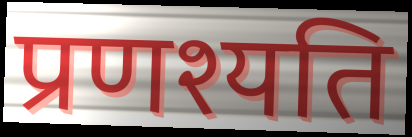
प्रणश्यति